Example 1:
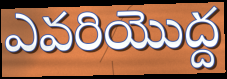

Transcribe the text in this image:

ఎవరియొద్ద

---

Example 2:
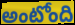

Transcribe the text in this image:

అంటోంది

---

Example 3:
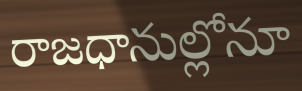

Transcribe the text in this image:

రాజధానుల్లోనూ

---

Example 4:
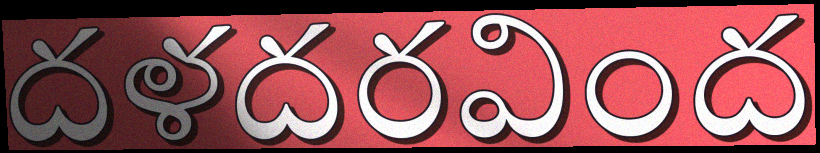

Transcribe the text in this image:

దళదరవింద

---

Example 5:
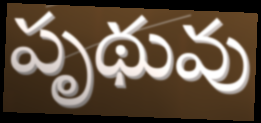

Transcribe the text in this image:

పృథువు